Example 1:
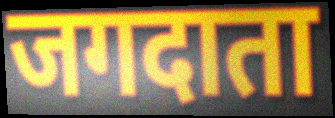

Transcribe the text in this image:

जगदाता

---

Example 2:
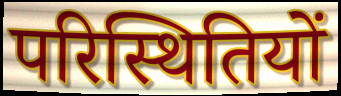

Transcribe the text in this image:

परिस्थितियों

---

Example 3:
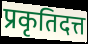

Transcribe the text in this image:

प्रकृतिदत्त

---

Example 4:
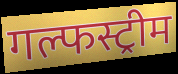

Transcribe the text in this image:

गल्फस्ट्रीम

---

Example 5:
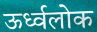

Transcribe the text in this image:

ऊर्ध्वलोक